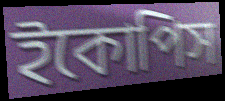
ইকোপিস